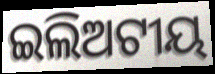
ଇଲିଅଟୀୟ